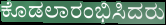
ಕೊಡಲಾರಂಭಿಸಿದರು